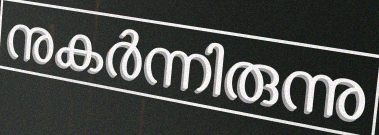
നുകർന്നിരുന്നു